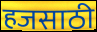
हजसाठी